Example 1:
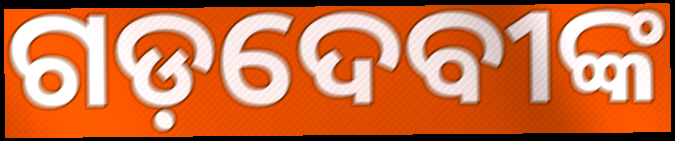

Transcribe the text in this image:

ଗଡ଼ଦେବୀଙ୍କ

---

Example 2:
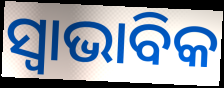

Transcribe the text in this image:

ସ୍ଵାଭାବିକ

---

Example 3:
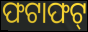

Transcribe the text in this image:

ଫଟାଫଟ୍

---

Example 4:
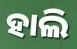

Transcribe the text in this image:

ହାଲି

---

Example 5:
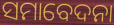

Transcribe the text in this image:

ସମାବେଦନା